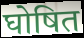
घोषित